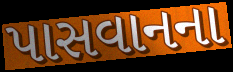
પાસવાનના